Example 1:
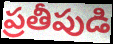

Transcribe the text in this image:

ప్రతీపుడి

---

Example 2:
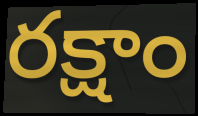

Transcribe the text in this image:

రక్షాం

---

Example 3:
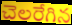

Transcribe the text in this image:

చెలరేగిన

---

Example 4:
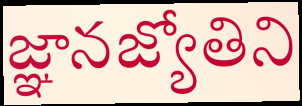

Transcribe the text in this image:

జ్ఞానజ్యోతిని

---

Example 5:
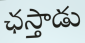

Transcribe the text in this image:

ఛస్తాడు